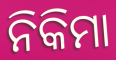
ନିକିମା